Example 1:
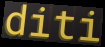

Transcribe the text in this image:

diti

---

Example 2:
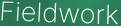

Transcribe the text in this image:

Fieldwork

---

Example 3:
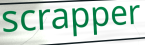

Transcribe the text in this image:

scrapper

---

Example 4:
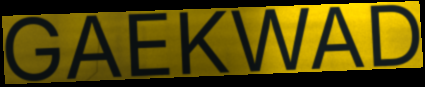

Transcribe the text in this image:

GAEKWAD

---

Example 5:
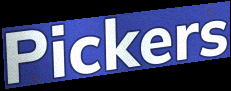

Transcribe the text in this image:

Pickers